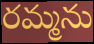
రమ్మను